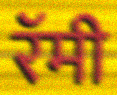
रॅमी